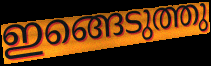
ഇങ്ങെടുത്തു